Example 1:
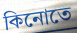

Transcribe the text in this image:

কিনোতে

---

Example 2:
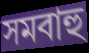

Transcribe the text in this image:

সমবাহু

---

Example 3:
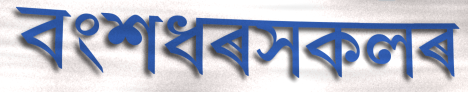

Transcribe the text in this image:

বংশধৰসকলৰ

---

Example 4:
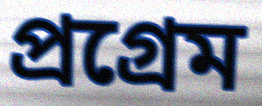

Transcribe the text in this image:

প্ৰগ্ৰেম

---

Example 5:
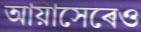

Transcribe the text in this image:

আয়াসেৰেও